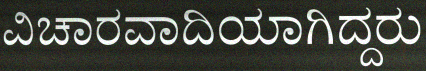
ವಿಚಾರವಾದಿಯಾಗಿದ್ದರು